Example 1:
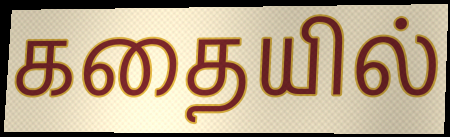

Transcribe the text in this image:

கதையில்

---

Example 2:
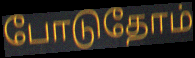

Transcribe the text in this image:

போடுதோம்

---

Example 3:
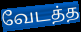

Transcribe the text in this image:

வேடத்த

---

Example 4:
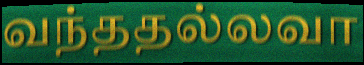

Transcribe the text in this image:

வந்ததல்லவா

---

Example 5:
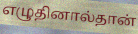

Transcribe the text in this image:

எழுதினால்தான்